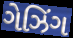
ગેઝિંગ